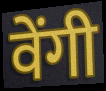
वेंगी